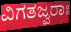
ವಿಗತಜ್ವರಾಃ